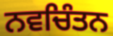
ਨਵਚਿੰਤਨ